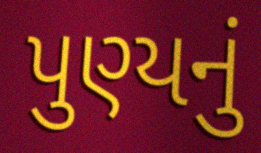
પુણ્યનું